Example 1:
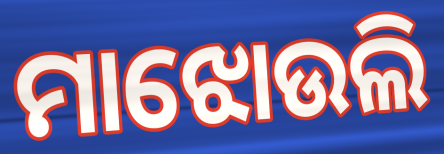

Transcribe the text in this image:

ମାଝୋଉଲି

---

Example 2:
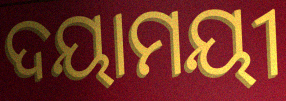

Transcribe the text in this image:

ଦୟାମୟୀ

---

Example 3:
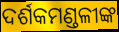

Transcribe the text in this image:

ଦର୍ଶକମଣ୍ଡଳୀଙ୍କ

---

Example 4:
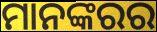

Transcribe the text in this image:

ମାନଙ୍କରର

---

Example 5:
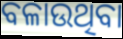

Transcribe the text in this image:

ବଳାଉଥିବା